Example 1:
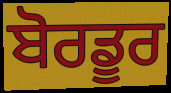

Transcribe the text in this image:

ਬੋਰਡੂਰ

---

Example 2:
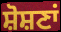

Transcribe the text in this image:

ਸ਼ੋਸ਼ਣਾਂ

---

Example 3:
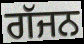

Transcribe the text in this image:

ਗੱਜਨ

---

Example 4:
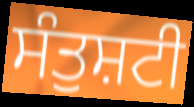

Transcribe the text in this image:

ਸੰਤੁਸ਼ਟੀ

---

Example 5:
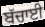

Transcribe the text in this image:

ਬੱਚਾਈ